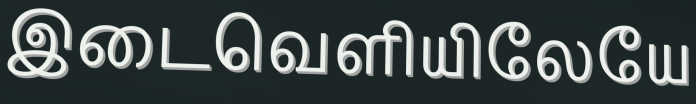
இடைவெளியிலேயே